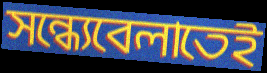
সন্ধ্যেবেলাতেই